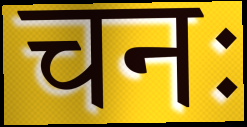
चनः